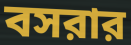
বসরার